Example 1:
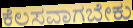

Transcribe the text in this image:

ಕೆಲಸವಾಗಬೇಕು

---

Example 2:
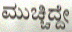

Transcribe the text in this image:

ಮುಚ್ಚಿದ್ದೇ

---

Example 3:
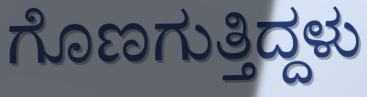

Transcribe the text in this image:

ಗೊಣಗುತ್ತಿದ್ದಳು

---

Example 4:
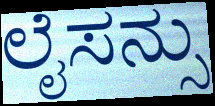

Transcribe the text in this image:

ಲೈಸನ್ಸು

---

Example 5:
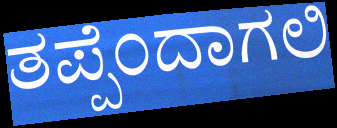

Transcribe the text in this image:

ತಪ್ಪೆಂದಾಗಲಿ